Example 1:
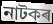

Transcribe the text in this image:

নাটকৰ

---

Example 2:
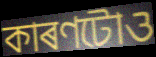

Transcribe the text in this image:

কাৰণটোও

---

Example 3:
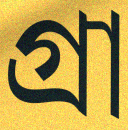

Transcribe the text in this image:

গ্ৰা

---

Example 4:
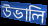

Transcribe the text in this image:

উভালি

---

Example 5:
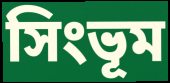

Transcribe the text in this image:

সিংভূম